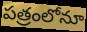
పత్రంలోనూ